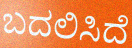
ಬದಲಿಸಿದೆ